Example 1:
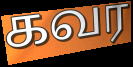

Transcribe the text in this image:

கவர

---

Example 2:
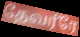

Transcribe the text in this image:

தேவரீரே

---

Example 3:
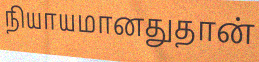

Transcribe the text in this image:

நியாயமானதுதான்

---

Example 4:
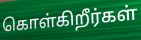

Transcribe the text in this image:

கொள்கிறீர்கள்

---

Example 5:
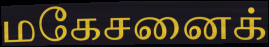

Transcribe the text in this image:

மகேசனைக்